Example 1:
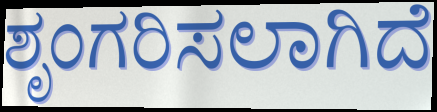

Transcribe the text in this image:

ಶೃಂಗರಿಸಲಾಗಿದೆ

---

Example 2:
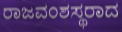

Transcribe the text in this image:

ರಾಜವಂಶಸ್ಥರಾದ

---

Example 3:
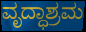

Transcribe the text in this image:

ವೃದ್ಧಾಶ್ರಮ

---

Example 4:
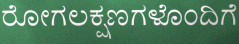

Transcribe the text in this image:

ರೋಗಲಕ್ಷಣಗಳೊಂದಿಗೆ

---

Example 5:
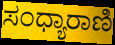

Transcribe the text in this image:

ಸಂಧ್ಯಾರಾಣಿ